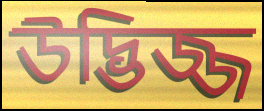
উদ্ভিজ্জ